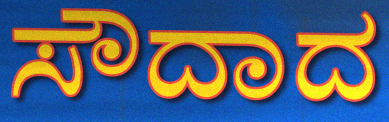
ಸೌದಾದ